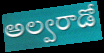
అల్వరాడో